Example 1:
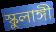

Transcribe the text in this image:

স্কুলাঙ্গী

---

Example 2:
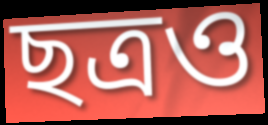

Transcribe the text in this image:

ছত্রও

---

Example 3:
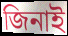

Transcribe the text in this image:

জিনাই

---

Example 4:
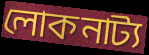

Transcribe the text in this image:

লোকনাট্য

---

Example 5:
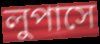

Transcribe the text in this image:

লুপাসে